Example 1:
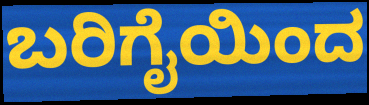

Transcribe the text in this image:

ಬರಿಗೈಯಿಂದ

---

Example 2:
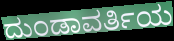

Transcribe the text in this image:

ದುಂಡಾವರ್ತಿಯ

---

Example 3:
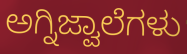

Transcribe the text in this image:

ಅಗ್ನಿಜ್ವಾಲೆಗಳು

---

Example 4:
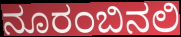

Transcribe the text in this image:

ನೂರಂಬಿನಲಿ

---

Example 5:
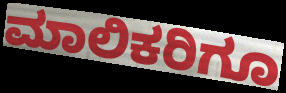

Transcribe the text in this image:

ಮಾಲಿಕರಿಗೂ